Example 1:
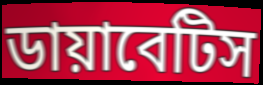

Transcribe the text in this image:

ডায়াবেটিস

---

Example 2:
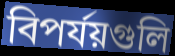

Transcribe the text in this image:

বিপর্যয়গুলি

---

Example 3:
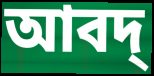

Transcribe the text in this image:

আবদ্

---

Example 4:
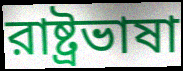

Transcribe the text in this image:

রাষ্ট্রভাষা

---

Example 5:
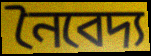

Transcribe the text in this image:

নৈবেদ্য